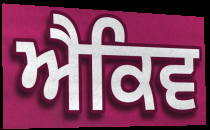
ਐਕਿਵ